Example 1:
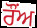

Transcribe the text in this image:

ਰੌਂਅ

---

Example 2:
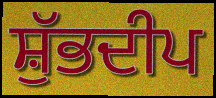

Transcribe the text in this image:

ਸ਼ੁੱਭਦੀਪ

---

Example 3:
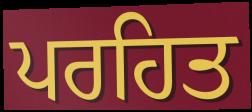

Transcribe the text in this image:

ਪਰਹਿਤ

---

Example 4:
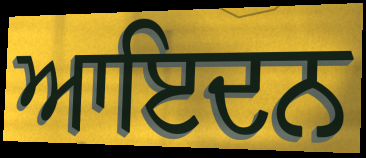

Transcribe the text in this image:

ਆਇਦਨ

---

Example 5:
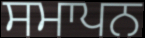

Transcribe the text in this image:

ਸਮਾਪਨ